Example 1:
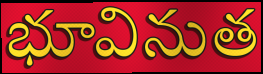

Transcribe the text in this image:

భూవినుత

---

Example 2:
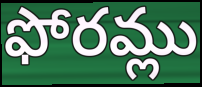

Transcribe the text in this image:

ఫోరమ్లు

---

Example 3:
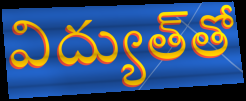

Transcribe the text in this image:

విద్యుత్‌తో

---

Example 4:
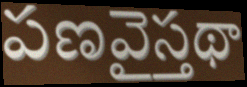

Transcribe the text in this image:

పణవైస్తథా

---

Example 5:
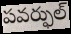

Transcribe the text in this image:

పవర్ఫుల్